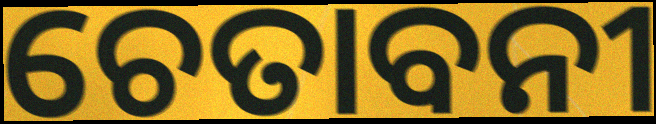
ଚେତାବନୀ